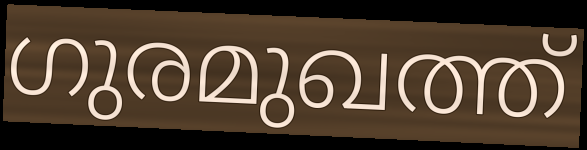
ഗുരമുഖത്ത്